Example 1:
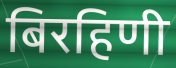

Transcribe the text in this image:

बिरहिणी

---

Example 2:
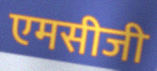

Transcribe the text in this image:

एमसीजी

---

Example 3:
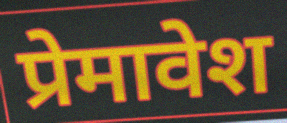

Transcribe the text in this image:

प्रेमावेश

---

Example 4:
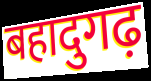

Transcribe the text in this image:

बहादुगढ़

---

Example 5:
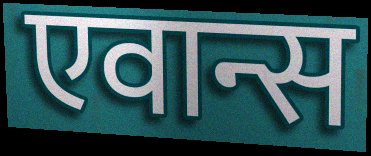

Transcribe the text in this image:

एवान्स